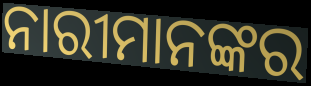
ନାରୀମାନଙ୍କର